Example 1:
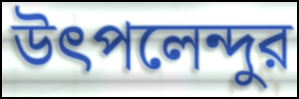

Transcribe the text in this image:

উৎপলেন্দুর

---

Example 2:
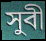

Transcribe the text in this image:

সুবী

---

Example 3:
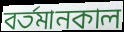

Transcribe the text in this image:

বর্তমানকাল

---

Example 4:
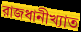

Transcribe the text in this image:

রাজধানীখ্যাত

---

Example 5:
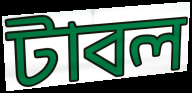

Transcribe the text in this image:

টাবল